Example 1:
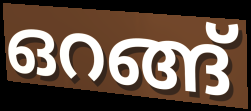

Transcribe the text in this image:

ഒറങ്ങ്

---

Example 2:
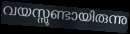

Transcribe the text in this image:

വയസ്സുണ്ടായിരുന്നു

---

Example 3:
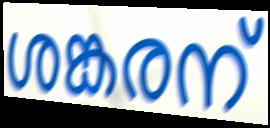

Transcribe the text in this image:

ശങ്കരന്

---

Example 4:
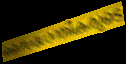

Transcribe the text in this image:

സൈദ്ധാന്തികരുടെ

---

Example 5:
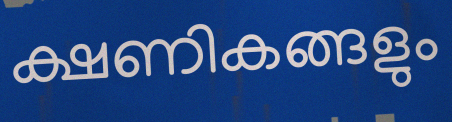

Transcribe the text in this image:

ക്ഷണികങ്ങളും